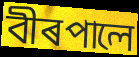
বীৰপালে